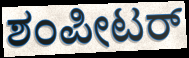
ಶಂಪೀಟರ್